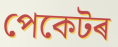
পেকেটৰ